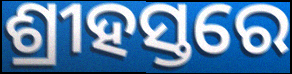
ଶ୍ରୀହସ୍ତରେ